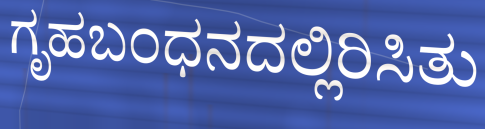
ಗೃಹಬಂಧನದಲ್ಲಿರಿಸಿತು